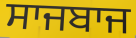
ਸਾਜਬਾਜ